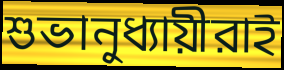
শুভানুধ্যায়ীরাই